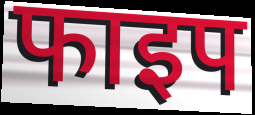
फाइप